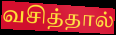
வசித்தால்